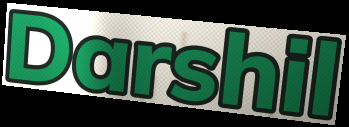
Darshil